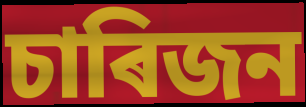
চাৰিজন